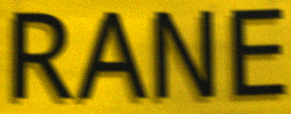
RANE